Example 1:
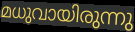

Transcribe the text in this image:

മധുവായിരുന്നു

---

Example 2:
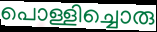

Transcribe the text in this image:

പൊള്ളിച്ചൊരു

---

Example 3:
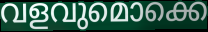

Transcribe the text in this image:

വളവുമൊക്കെ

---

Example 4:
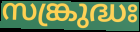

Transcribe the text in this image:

സങ്ക്രുദ്ധഃ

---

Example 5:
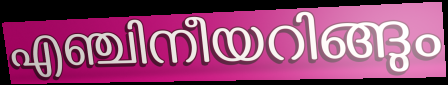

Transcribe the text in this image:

എഞ്ചിനീയറിങ്ങും